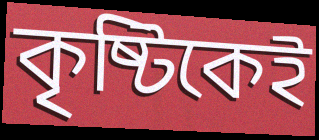
কৃষ্টিকেই